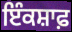
ਇੰਕਸ਼ਾਫ਼